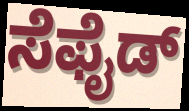
ಸೆಫೈಡ್